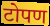
टोपण